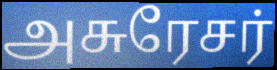
அசுரேசர்